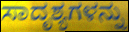
ಸಾದೃಶ್ಯಗಳನ್ನು